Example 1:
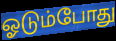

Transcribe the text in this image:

ஓடும்போது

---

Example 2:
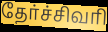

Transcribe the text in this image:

தேர்ச்சிவரி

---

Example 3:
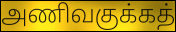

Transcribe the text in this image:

அணிவகுக்கத்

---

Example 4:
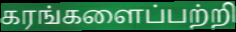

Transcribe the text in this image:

கரங்களைப்பற்றி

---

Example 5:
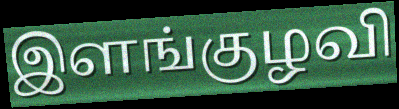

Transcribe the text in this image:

இளங்குழவி